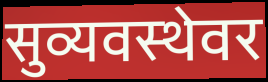
सुव्यवस्थेवर